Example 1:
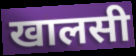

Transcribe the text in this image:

खालसी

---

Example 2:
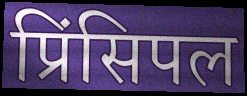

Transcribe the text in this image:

प्रिंसिपल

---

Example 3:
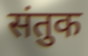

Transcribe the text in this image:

संतुक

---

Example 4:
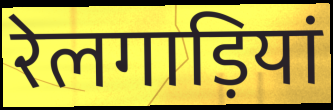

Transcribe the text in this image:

रेलगाड़ियां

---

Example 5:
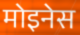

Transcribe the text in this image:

मोइनेस